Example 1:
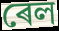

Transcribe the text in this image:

ৰেল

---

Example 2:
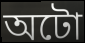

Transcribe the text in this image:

অটো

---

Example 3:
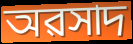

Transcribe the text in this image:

অৱসাদ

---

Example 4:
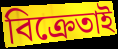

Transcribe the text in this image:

বিক্ৰেতাই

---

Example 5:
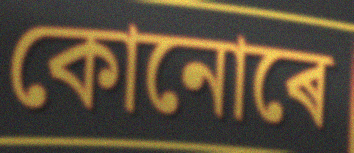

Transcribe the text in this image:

কোনোৰে